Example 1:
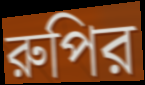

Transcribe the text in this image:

রুপির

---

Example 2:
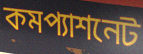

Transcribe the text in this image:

কমপ্যাশনেট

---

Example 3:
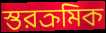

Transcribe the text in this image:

স্তরক্রমিক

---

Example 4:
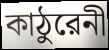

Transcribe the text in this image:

কাঠুরেনী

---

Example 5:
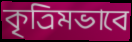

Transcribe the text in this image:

কৃত্রিমভাবে